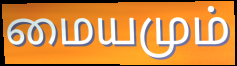
மையமும்